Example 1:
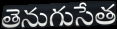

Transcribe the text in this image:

తెనుగుసేత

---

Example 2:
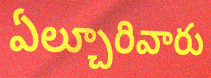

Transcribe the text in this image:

ఏల్చూరివారు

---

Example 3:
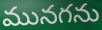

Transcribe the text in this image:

మునగను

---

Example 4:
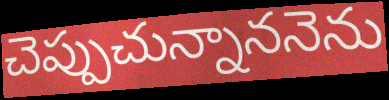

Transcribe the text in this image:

చెప్పుచున్నాననెను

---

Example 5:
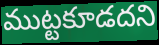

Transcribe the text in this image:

ముట్టకూడదని